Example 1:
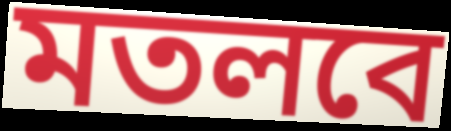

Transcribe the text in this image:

মতলবে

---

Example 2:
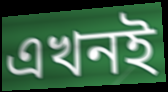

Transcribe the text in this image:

এখনই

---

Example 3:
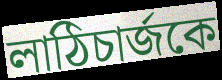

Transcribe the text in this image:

লাঠিচার্জকে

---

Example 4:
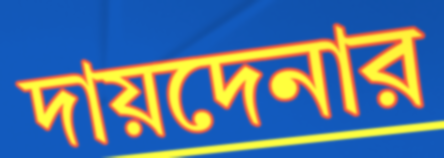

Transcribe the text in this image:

দায়দেনার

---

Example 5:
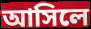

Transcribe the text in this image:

আসিলে